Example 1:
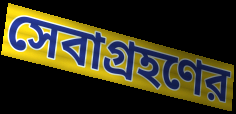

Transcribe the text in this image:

সেবাগ্রহণের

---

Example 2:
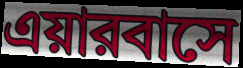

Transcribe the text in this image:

এয়ারবাসে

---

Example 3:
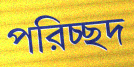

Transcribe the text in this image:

পরিচ্ছদ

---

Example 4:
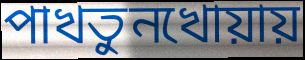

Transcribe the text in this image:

পাখতুনখোয়ায়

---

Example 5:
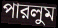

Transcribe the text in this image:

পারলুম